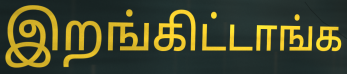
இறங்கிட்டாங்க